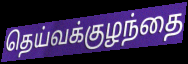
தெய்வக்குழந்தை